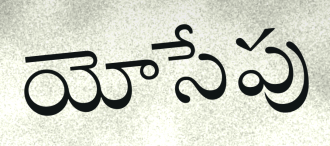
యోసేపు